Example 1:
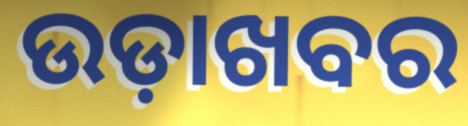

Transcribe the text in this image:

ଉଡ଼ାଖବର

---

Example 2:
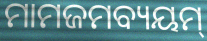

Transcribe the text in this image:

ମାମଜମବ୍ୟୟମ୍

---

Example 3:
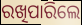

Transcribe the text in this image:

ରଖିପାରିଲେ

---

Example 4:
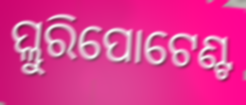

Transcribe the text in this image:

ପ୍ଲୁରିପୋଟେଣ୍ଟ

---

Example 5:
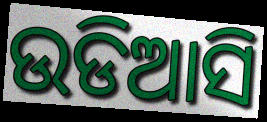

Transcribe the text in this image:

ଉଡିଆସି